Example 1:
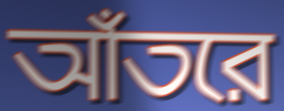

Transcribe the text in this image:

আঁতরে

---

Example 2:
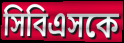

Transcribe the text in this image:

সিবিএসকে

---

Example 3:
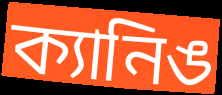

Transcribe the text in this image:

ক্যানিঙ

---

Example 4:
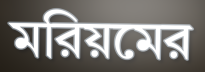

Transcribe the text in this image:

মরিয়মের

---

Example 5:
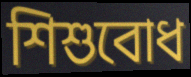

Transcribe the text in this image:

শিশুবোধ